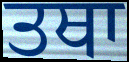
ਤਥਾ